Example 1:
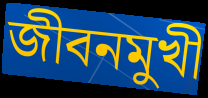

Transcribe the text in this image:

জীবনমুখী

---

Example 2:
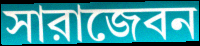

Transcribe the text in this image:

সারাজেবন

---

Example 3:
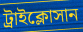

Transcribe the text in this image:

ট্রাইক্লোসান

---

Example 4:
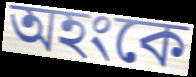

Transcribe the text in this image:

অহংকে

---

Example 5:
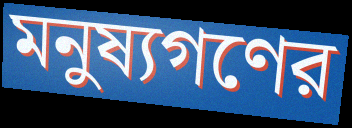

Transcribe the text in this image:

মনুষ্যগণের